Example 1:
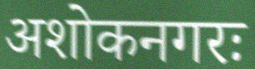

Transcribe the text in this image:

अशोकनगरः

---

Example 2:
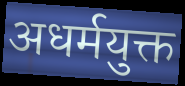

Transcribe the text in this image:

अधर्मयुक्त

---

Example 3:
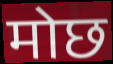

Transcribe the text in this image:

मोछ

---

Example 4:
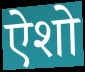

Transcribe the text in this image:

ऐशो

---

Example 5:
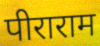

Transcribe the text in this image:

पीराराम